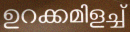
ഉറക്കമിളച്ച്